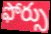
ఫోర్సు